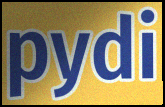
pydi